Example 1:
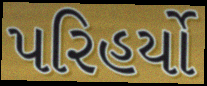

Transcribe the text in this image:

પરિહર્યો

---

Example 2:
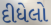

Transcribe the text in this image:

દીધેલો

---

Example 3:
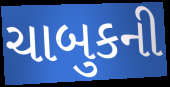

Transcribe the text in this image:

ચાબુકની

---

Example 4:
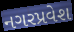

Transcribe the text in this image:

નગરપ્રવેશ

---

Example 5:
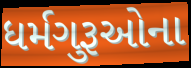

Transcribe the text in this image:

ધર્મગુરૂઓના